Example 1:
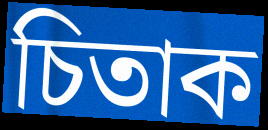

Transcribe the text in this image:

চিতাক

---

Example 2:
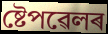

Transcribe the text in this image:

ষ্টেপৱেলৰ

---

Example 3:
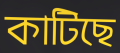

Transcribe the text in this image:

কাটিছে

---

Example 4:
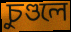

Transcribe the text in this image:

চুণ্ডলে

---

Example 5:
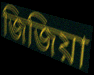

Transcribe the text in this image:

জিজিয়া